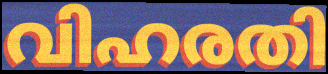
വിഹരതി